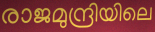
രാജമുന്ദ്രിയിലെ